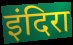
इंदिरा